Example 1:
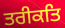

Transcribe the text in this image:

ਤਰੀਕਤਿ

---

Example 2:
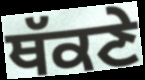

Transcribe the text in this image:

ਥੱਕਣੇ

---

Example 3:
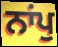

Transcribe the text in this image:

ਨਾਂਪੁ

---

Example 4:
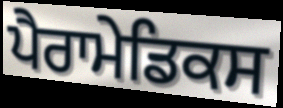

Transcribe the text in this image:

ਪੈਰਾਮੇਡਿਕਸ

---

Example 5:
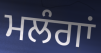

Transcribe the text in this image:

ਮਲੰਗਾਂ